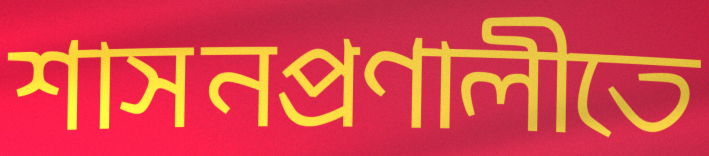
শাসনপ্রণালীতে